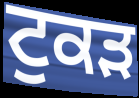
ਟੁਕੜ